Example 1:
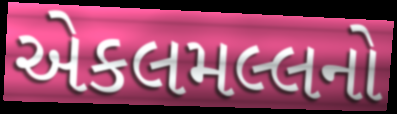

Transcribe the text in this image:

એકલમલ્લનો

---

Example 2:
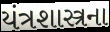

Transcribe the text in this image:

યંત્રશાસ્ત્રના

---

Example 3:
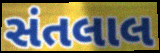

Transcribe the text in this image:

સંતલાલ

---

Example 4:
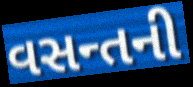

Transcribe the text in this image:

વસન્તની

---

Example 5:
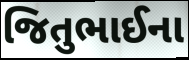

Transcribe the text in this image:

જિતુભાઈના